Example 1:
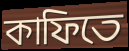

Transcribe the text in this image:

কাফিতে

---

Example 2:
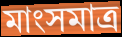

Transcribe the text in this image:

মাংসমাত্র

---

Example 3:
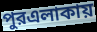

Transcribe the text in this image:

পুরএলাকায়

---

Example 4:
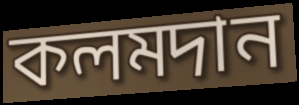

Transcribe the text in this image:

কলমদান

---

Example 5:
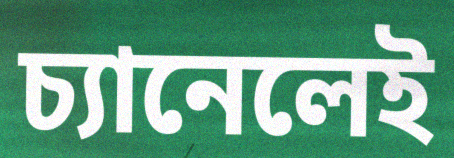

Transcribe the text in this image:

চ্যানেলেই